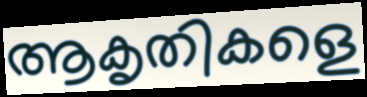
ആകൃതികളെ